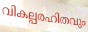
വികല്പരഹിതവും